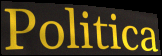
Politica